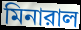
মিনারাল